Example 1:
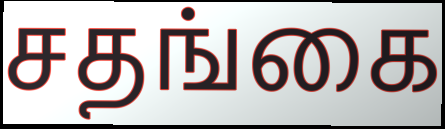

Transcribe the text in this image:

சதங்கை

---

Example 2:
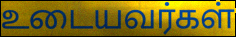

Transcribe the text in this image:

உடையவர்கள்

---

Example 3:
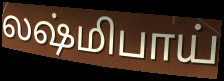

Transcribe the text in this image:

லஷ்மிபாய்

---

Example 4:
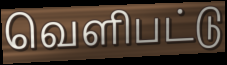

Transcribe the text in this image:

வெளிபட்டு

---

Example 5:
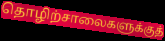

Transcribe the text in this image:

தொழிற்சாலைகளுக்குத்